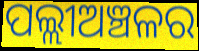
ପଲ୍ଲୀଅଞ୍ଚଳର